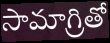
సామాగ్రితో